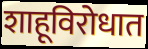
शाहूविरोधात